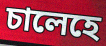
চালেহে